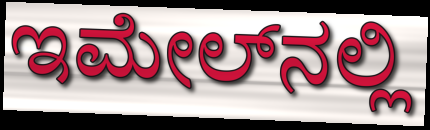
ಇಮೇಲ್‌ನಲ್ಲಿ